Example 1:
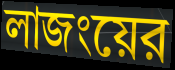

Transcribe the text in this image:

লাজংয়ের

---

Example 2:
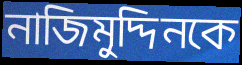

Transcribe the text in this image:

নাজিমুদ্দিনকে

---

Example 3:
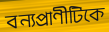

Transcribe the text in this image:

বন্যপ্রাণীটিকে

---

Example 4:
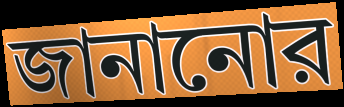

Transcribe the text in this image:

জানানোর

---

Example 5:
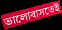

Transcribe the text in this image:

ভালোবাসতেই